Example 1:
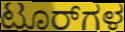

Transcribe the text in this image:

ಟೂರ್‌ಗಳ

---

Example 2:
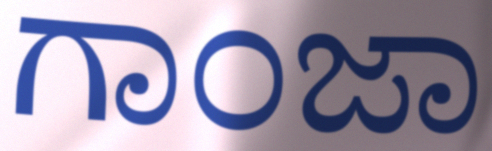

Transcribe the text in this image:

ಗಾಂಜಾ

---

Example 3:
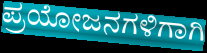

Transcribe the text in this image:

ಪ್ರಯೋಜನಗಳಿಗಾಗಿ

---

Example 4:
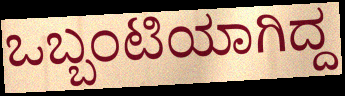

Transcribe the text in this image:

ಒಬ್ಬಂಟಿಯಾಗಿದ್ದ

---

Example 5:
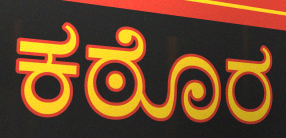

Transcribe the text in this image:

ಕಠೊರ